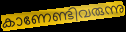
കാണേണ്ടിവരുന്നു